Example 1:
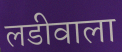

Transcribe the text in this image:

लडीवाला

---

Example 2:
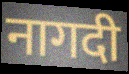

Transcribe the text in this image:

नागदी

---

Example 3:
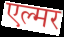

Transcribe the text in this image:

एल्मर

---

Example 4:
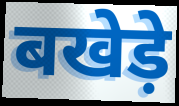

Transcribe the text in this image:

बखेड़े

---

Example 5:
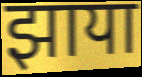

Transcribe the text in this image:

झाया